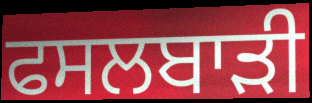
ਫਸਲਬਾੜੀ